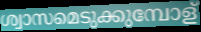
ശ്വാസമെടുക്കുമ്പോള്